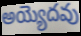
అయ్యెదవు